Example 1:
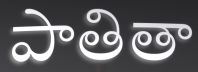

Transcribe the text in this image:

పాతితా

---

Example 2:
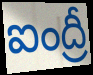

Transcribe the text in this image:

ఐంద్రీ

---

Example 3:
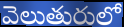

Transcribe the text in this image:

వెలుతురులో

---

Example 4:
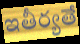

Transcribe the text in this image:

ఇతీర్యతే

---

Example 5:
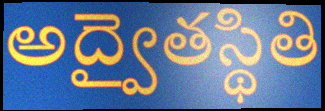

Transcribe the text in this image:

అద్వైతస్థితి